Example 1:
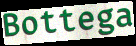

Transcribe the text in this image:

Bottega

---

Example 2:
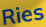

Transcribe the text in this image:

Ries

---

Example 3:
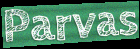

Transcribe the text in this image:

Parvas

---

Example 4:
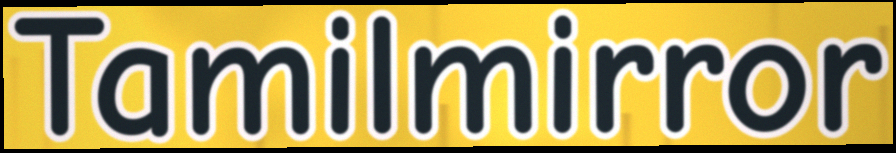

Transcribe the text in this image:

Tamilmirror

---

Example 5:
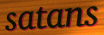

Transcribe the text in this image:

satans